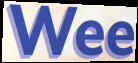
Wee